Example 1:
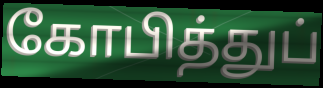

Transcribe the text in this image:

கோபித்துப்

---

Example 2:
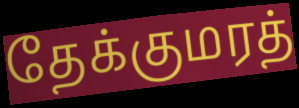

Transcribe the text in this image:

தேக்குமரத்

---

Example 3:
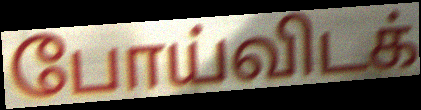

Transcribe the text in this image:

போய்விடக்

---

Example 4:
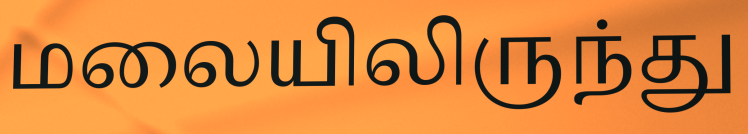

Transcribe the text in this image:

மலையிலிருந்து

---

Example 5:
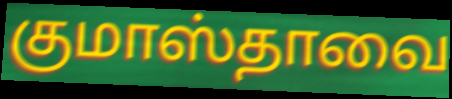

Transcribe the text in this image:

குமாஸ்தாவை